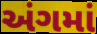
અંગમાં